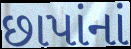
છાપાંનાં